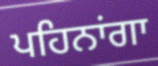
ਪਹਿਨਾਂਗਾ